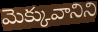
మెక్కువానిని